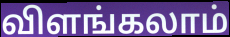
விளங்கலாம்